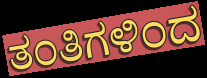
ತಂತಿಗಳಿಂದ